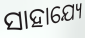
ସାହାଯ୍ୟେ